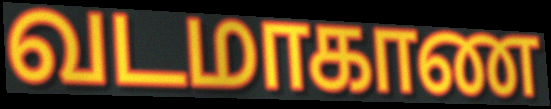
வடமாகாண